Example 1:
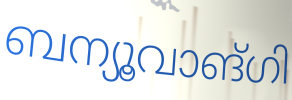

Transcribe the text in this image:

ബന്യൂവാങ്ഗി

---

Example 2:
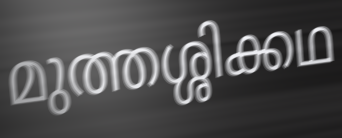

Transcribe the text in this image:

മുത്തശ്ശിക്കഥ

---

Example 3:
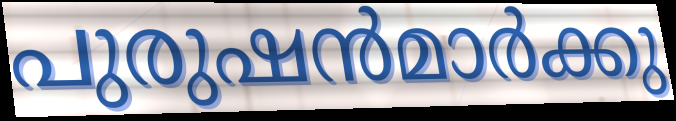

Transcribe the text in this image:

പുരുഷൻമാർക്കു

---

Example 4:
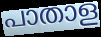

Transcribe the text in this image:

പാതാള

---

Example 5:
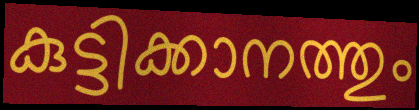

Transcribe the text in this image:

കുട്ടിക്കാനത്തും